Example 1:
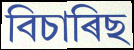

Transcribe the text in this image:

বিচাৰিছ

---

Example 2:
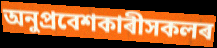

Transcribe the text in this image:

অনুপ্ৰবেশকাৰীসকলৰ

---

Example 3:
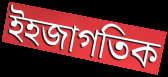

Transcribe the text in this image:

ইহজাগতিক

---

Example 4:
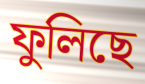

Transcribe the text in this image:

ফুলিছে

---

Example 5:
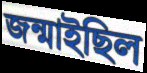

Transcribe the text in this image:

জন্মাইছিল